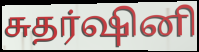
சுதர்ஷினி